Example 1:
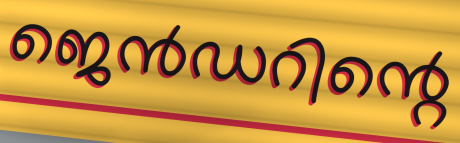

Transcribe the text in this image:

ജെൻഡറിന്റെ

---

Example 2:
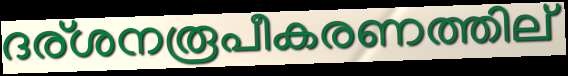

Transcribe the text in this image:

ദര്ശനരൂപീകരണത്തില്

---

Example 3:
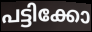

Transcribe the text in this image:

പട്ടിക്കോ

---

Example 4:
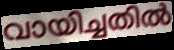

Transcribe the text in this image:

വായിച്ചതിൽ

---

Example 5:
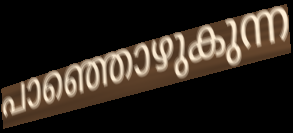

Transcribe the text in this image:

പാഞ്ഞൊഴുകുന്ന